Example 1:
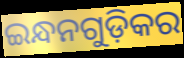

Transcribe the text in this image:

ଇନ୍ଧନଗୁଡ଼ିକର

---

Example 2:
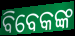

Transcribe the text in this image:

ବିବେକଙ୍କ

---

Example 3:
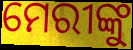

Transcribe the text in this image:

ମେରୀଙ୍କୁ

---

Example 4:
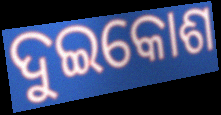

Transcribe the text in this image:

ଦୁଇକୋଶ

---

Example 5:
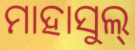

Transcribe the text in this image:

ମାହାସୁଲ୍